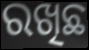
ରଖିଛ